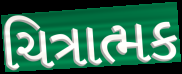
ચિત્રાત્મક